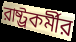
রাষ্ট্রকর্মীর